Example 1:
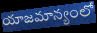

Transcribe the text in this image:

యాజమాన్యంలో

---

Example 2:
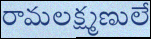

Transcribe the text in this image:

రామలక్ష్మణులే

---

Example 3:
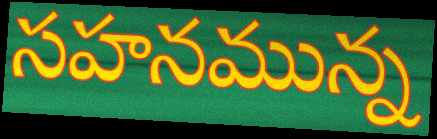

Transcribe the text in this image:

సహనమున్న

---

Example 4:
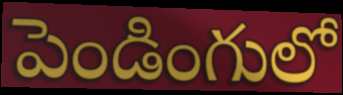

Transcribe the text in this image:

పెండింగులో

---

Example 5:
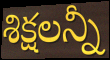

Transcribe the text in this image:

శిక్షలన్నీ